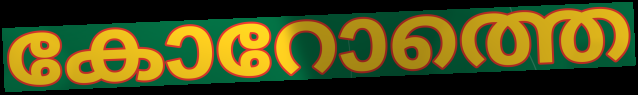
കോറോത്തെ